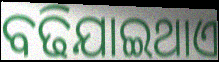
ବଢିଯାଇଥାଏ